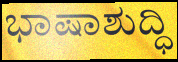
ಭಾಷಾಶುದ್ಧಿ